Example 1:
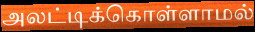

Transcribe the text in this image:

அலட்டிக்கொள்ளாமல்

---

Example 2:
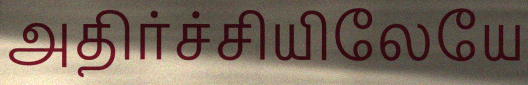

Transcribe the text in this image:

அதிர்ச்சியிலேயே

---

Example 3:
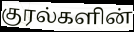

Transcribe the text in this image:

குரல்களின்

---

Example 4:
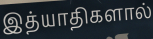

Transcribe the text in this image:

இத்யாதிகளால்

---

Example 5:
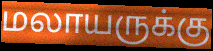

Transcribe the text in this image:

மலாயருக்கு